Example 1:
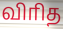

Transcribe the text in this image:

விரித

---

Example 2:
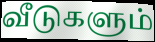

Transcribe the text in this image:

வீடுகளும்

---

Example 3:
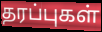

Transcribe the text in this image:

தரப்புகள்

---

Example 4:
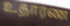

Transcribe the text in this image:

உதாரண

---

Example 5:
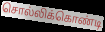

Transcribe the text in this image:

சொல்லிக்கொண்டி